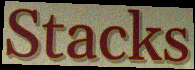
Stacks